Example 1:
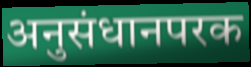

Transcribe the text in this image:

अनुसंधानपरक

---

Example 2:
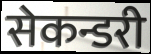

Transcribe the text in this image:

सेकन्डरी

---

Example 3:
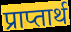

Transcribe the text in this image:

प्राप्तार्थ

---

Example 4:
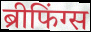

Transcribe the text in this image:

ब्रीफिंग्स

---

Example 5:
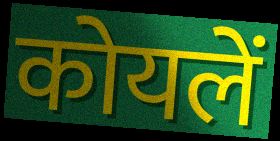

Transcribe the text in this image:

कोयलें